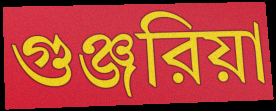
গুঞ্জরিয়া